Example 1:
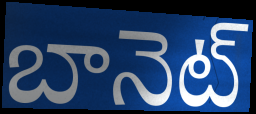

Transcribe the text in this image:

బానెట్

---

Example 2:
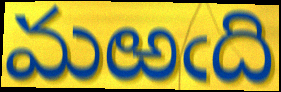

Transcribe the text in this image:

మఱఁది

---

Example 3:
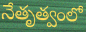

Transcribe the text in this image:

నేతృత్వంలో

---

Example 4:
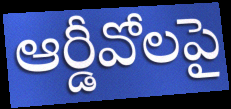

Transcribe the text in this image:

ఆర్డీవోలపై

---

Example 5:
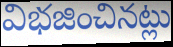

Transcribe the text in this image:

విభజించినట్లు